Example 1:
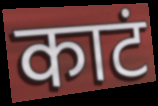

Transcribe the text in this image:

काटं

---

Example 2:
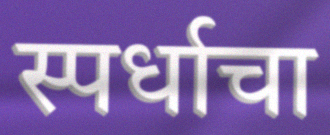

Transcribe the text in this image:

स्पर्धाचा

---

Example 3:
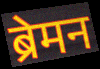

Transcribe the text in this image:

ब्रेमन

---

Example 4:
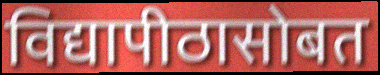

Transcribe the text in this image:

विद्यापीठासोबत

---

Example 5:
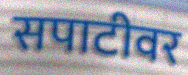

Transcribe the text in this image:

सपाटीवर